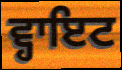
ਵ੍ਹਾਇਟ